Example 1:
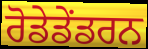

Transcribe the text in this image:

ਰੋਡੇਡੇਂਡਰਨ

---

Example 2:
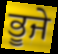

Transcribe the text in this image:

ਭੂਜੇ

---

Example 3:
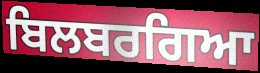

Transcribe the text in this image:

ਬਿਲਬਰਗਿਆ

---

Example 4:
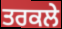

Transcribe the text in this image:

ਤਰਕਲੇ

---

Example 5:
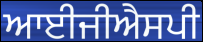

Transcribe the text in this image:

ਆਈਜੀਐਸਪੀ